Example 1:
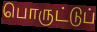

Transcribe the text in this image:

பொருட்டுப்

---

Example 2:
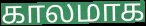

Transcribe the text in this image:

காலமாக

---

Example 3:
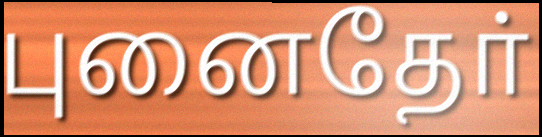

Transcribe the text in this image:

புனைதேர்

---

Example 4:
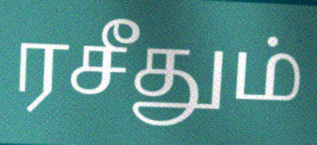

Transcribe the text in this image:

ரசீதும்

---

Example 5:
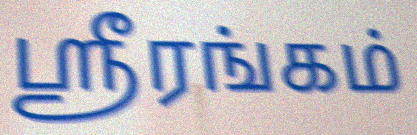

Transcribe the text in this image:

ஸ்ரீரங்கம்